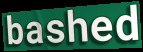
bashed